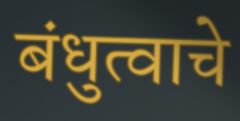
बंधुत्वाचे